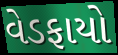
વેડફાયો